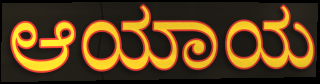
ಆಯಾಯ